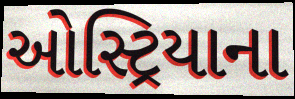
ઓસ્ટ્રિયાના